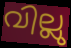
വില്ലു